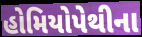
હોમિયોપેથીના